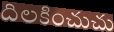
దిలకించుచు